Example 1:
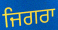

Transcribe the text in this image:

ਜਿਗਰਾ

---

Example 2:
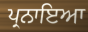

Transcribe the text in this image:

ਪ੍ਰਨਾਇਆ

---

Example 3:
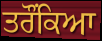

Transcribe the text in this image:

ਤਰੌਂਕਿਆ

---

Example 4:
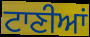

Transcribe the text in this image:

ਟਾਣੀਆਂ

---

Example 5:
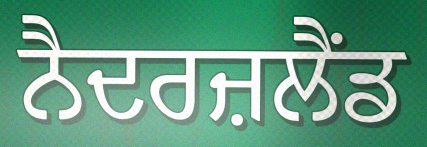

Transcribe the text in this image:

ਨੈਦਰਜ਼ਲੈਂਡ